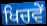
ਖਿਚਵੇਂ